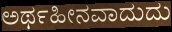
ಅರ್ಥಹೀನವಾದುದು